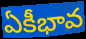
ఏకీభావ